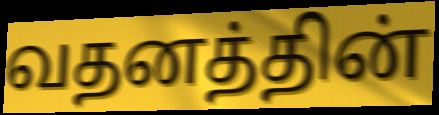
வதனத்தின்